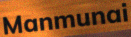
Manmunai